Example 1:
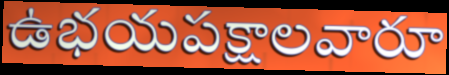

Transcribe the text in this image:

ఉభయపక్షాలవారూ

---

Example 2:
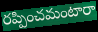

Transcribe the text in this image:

రప్పించమంటారా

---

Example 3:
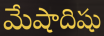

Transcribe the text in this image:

మేషాదిషు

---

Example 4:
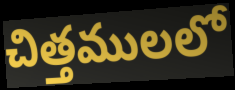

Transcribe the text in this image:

చిత్తములలో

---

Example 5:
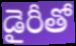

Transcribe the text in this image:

డైరీతో